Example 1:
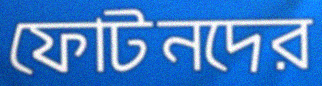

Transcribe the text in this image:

ফোটনদের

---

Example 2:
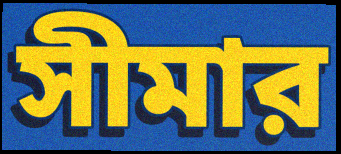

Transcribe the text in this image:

সীমার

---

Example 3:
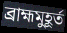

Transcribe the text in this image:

ব্রাহ্মমুহূর্ত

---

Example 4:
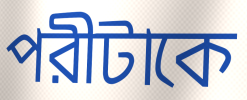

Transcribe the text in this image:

পরীটাকে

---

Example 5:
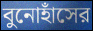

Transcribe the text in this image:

বুনোহাঁসের